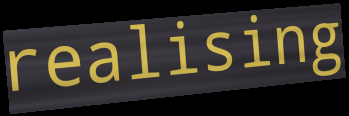
realising